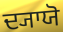
ਦ੍ਯਾਯੋ